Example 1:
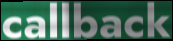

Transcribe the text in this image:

callback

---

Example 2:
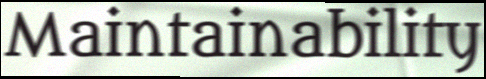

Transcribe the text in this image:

Maintainability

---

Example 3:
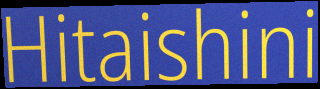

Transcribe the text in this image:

Hitaishini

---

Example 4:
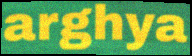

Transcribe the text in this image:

arghya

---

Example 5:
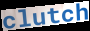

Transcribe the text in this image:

clutch